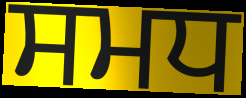
ਸਮਧ